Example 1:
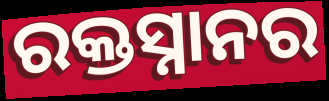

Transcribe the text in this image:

ରକ୍ତସ୍ନାନର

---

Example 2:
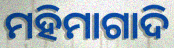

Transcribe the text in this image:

ମହିମାଗାଦି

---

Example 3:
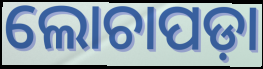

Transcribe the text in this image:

ଲୋଚାପଡ଼ା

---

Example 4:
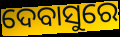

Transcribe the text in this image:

ଦେବାସୁରେ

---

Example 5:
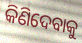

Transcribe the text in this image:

କିଣିଦେବାକୁ